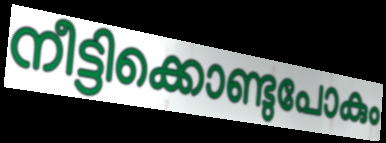
നീട്ടിക്കൊണ്ടുപോകും